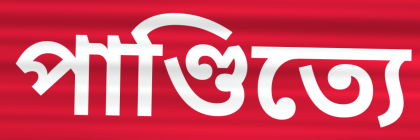
পাণ্ডিত্যে